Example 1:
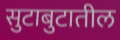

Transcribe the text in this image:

सुटाबुटातील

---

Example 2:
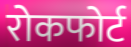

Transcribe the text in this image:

रोकफोर्ट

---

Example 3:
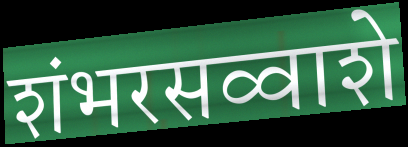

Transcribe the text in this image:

शंभरसव्वाशे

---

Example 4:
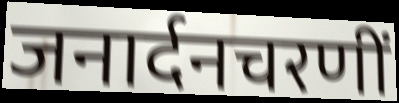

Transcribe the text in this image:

जनार्दनचरणीं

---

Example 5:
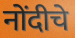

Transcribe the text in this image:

नोंदीचे